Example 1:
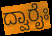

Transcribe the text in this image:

ದ್ವಾರೈಃ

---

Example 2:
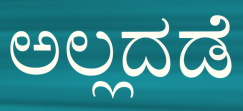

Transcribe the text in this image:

ಅಲ್ಲದಡೆ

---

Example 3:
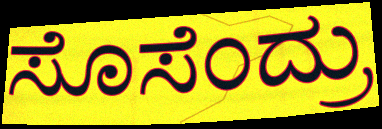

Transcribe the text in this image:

ಸೊಸೆಂದ್ರು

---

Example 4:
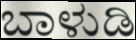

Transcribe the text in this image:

ಬಾಳುಡಿ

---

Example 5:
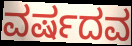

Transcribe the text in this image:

ವರ್ಷದವ